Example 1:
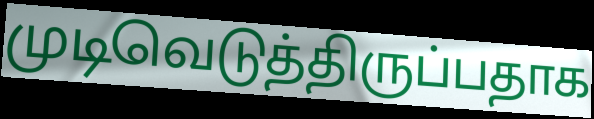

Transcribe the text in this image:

முடிவெடுத்திருப்பதாக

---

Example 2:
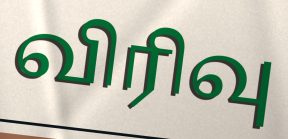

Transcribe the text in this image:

விரிவு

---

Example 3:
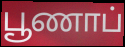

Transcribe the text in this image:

பூணாப்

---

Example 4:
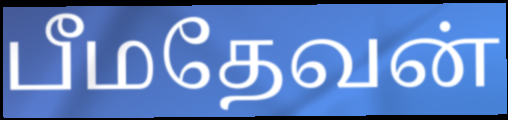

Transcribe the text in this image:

பீமதேவன்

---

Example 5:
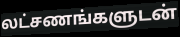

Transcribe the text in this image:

லட்சணங்களுடன்